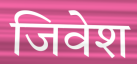
जिवेश